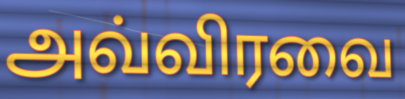
அவ்விரவை